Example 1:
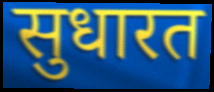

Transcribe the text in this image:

सुधारत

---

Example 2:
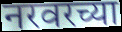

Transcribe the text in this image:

नरवरच्या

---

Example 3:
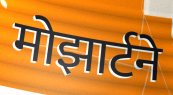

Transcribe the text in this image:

मोझार्टने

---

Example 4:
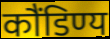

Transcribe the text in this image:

कौंडिण्य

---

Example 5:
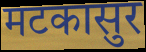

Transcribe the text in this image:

मटकासुर